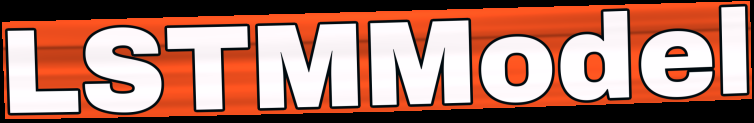
LSTMModel